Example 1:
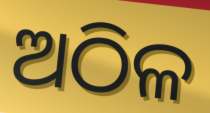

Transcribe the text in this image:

ଅଠିଳ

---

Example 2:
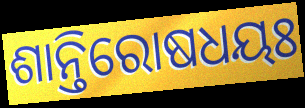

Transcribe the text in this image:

ଶାନ୍ତିରୋଷଧୟଃ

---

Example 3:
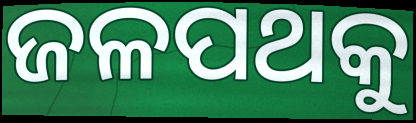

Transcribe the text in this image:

ଜଳପଥକୁ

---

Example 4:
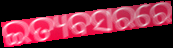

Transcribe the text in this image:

ଇତ୍ୟବସରରେ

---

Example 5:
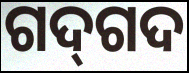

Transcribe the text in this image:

ଗଦ୍‍ଗଦ